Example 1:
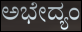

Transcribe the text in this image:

ಅಭೇದ್ಯಂ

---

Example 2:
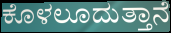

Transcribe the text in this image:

ಕೊಳಲೂದುತ್ತಾನೆ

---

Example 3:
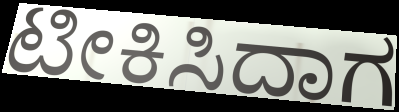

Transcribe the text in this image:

ಟೀಕಿಸಿದಾಗ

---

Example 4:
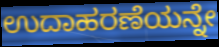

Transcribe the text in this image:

ಉದಾಹರಣೆಯನ್ನೇ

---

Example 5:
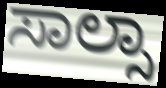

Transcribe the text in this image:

ಸಾಲ್ಸಾ